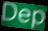
Dep